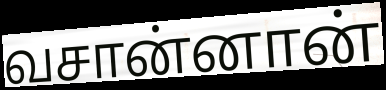
வசான்னான்